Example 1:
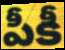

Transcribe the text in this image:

పీకీ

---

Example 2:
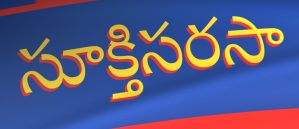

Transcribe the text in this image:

సూక్తిసరసా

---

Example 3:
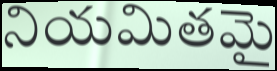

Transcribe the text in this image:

నియమితమై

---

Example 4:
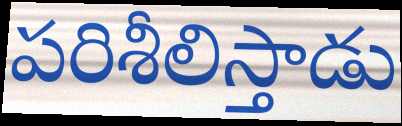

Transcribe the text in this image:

పరిశీలిస్తాడు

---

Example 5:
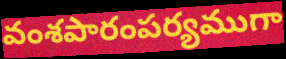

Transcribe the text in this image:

వంశపారంపర్యముగా